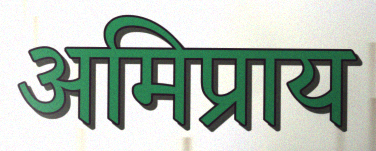
अमिप्राय